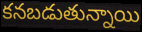
కనబడుతున్నాయి